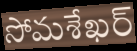
సోమశేఖర్